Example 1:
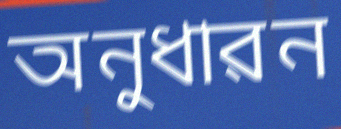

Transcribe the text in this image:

অনুধাৱন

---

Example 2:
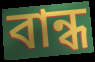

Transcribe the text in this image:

বান্ধ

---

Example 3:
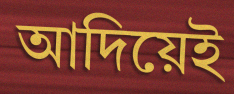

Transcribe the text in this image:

আদিয়েই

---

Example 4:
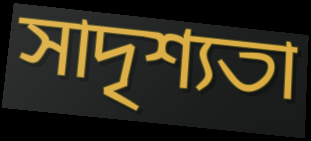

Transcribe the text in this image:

সাদৃশ্যতা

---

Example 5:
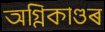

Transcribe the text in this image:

অগ্নিকাণ্ডৰ